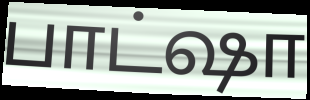
பாட்ஷா